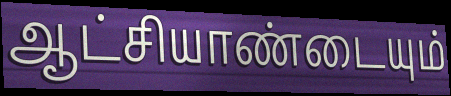
ஆட்சியாண்டையும்